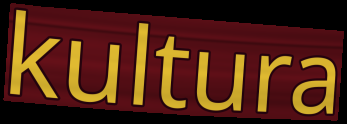
kultura